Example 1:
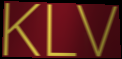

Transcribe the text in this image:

KLV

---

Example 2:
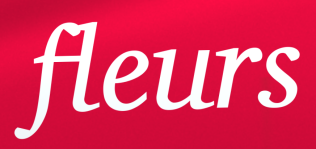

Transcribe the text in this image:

fleurs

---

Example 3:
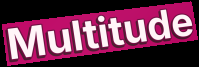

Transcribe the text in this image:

Multitude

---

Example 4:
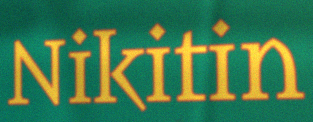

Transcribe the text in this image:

Nikitin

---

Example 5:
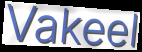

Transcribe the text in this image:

Vakeel